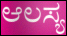
ಆಲಸ್ಯ